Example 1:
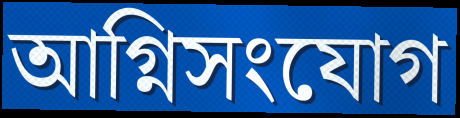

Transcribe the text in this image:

আগ্নিসংযোগ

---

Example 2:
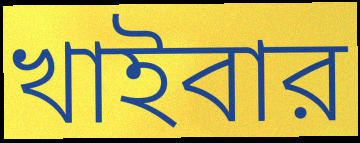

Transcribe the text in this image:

খাইবার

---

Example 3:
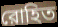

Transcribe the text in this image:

রোহিত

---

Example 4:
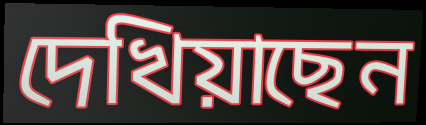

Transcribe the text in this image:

দেখিয়াছেন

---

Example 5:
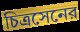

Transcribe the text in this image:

চিত্রসেনের